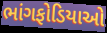
ભાંગફોડિયાઓ